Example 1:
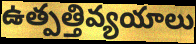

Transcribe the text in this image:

ఉత్పత్తివ్యయాలు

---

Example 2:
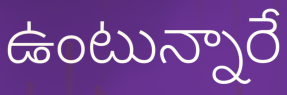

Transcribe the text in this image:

ఉంటున్నారే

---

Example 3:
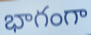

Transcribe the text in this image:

భాగంగా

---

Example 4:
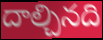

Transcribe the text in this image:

దాల్చినది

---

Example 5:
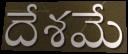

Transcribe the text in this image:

దేశమే